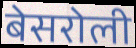
बेसरोली